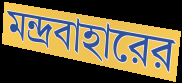
মন্দ্রবাহারের